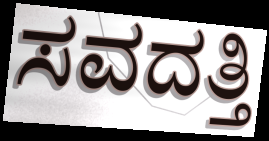
ಸವದತ್ತಿ